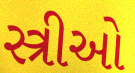
સ્ત્રીઓ